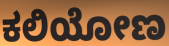
ಕಲಿಯೋಣ